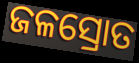
ଜଳସ୍ରୋତ